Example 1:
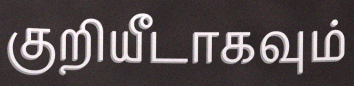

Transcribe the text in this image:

குறியீடாகவும்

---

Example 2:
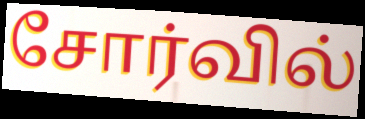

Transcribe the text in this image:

சோர்வில்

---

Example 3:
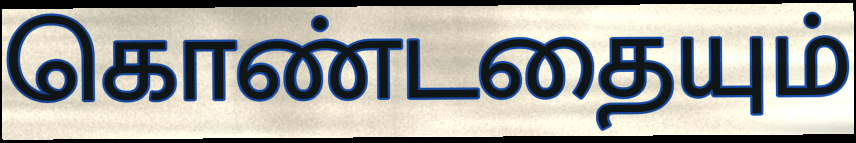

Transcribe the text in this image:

கொண்டதையும்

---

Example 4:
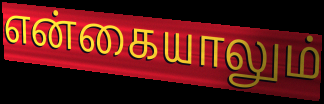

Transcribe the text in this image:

என்கையாலும்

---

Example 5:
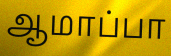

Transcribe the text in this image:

ஆமாப்பா